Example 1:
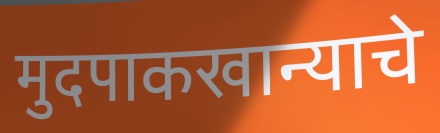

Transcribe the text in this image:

मुदपाकखान्याचे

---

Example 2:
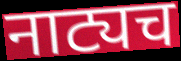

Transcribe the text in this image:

नाट्यच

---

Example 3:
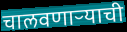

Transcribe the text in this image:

चालवणाऱ्याची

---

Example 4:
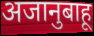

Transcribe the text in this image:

अजानुबाहू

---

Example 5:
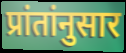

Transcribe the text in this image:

प्रांतांनुसार